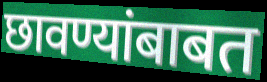
छावण्यांबाबत